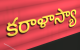
కరాళాస్యా